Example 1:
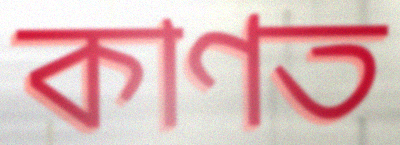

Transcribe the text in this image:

কাণত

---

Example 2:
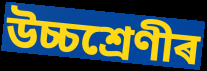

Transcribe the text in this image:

উচ্চশ্ৰেণীৰ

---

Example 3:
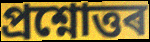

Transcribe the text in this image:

প্ৰশ্নোত্তৰ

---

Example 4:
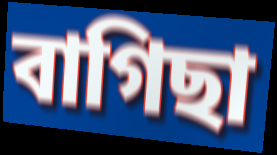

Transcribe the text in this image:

বাগিছা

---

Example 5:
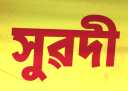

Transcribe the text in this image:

সুৱদী